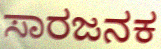
ಸಾರಜನಕ